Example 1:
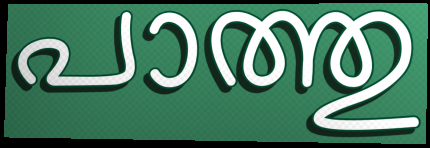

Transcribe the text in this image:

പാത്തു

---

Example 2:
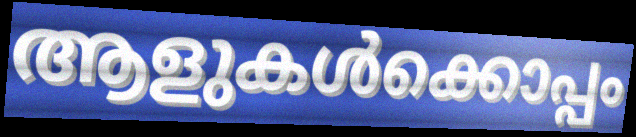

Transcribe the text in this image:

ആളുകൾക്കൊപ്പം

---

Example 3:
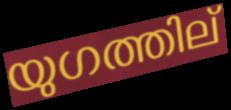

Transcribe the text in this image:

യുഗത്തില്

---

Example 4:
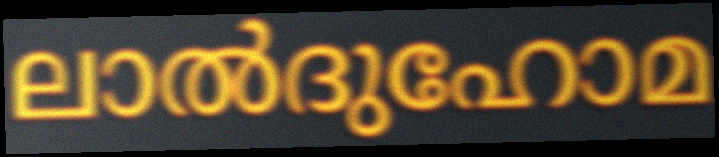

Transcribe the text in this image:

ലാൽദുഹോമ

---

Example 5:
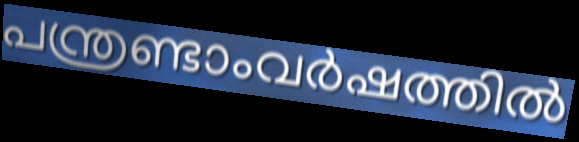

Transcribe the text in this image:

പന്ത്രണ്ടാംവർഷത്തിൽ